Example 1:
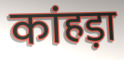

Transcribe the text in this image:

कांहड़ा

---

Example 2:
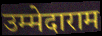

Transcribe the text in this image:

उम्मेदाराम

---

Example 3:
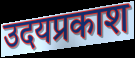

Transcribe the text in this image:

उदयप्रकाश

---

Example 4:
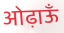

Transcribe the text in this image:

ओढ़ाऊँ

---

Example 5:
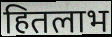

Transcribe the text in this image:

हितलाभ